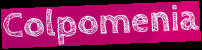
Colpomenia